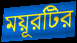
ময়ূরটির